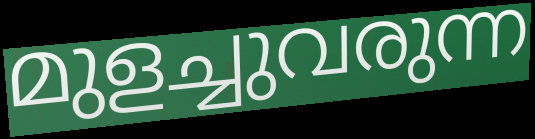
മുളച്ചുവരുന്ന